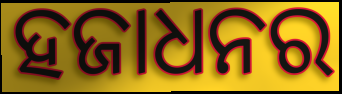
ହଜାଧନର